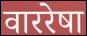
वाररेषा